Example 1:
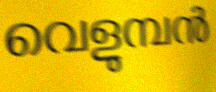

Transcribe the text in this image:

വെളുമ്പൻ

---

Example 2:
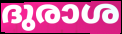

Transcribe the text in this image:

ദുരാശ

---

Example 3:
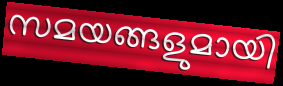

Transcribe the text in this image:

സമയങ്ങളുമായി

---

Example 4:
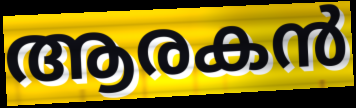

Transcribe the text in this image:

ആരകൻ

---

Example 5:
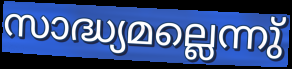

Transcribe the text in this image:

സാദ്ധ്യമല്ലെന്നു്